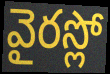
వైరస్లో